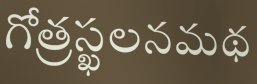
గోత్రస్ఖలనమథ